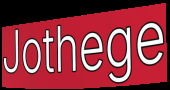
Jothege